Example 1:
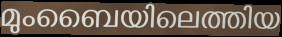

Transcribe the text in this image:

മുംബൈയിലെത്തിയ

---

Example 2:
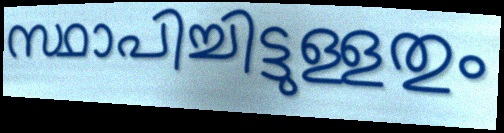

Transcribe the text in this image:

സ്ഥാപിച്ചിട്ടുള്ളതും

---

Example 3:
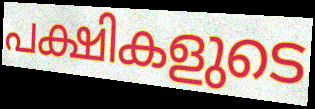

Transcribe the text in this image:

പക്ഷികളുടെ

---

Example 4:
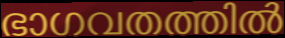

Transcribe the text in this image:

ഭാഗവതത്തിൽ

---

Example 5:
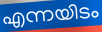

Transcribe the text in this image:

എന്നയിടം